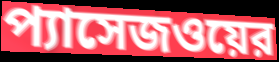
প্যাসেজওয়ের